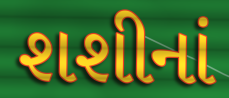
શશીનાં